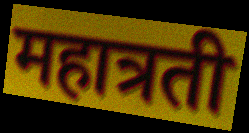
महात्रती